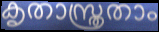
കൃതാസ്ത്രതാം